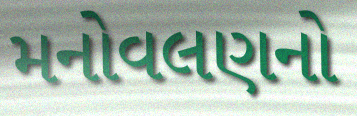
મનોવલણનો